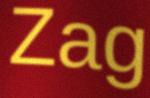
Zag